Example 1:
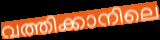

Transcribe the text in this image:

വത്തിക്കാനിലെ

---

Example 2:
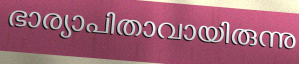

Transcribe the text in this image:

ഭാര്യാപിതാവായിരുന്നു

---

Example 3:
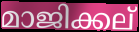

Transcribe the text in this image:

മാജിക്കല്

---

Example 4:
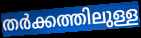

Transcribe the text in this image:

തർക്കത്തിലുള്ള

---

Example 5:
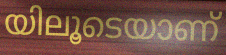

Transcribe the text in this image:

യിലൂടെയാണ്